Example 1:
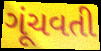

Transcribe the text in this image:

ગૂંચવતી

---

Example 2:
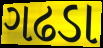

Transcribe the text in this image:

ગઢડા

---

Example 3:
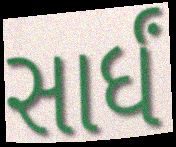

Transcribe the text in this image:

સાર્ધં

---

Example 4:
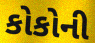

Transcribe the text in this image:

કોકોની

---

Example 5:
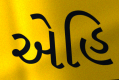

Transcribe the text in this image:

એહિ